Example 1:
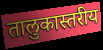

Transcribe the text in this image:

तालुकास्तरीय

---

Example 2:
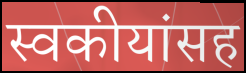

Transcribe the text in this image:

स्वकीयांसह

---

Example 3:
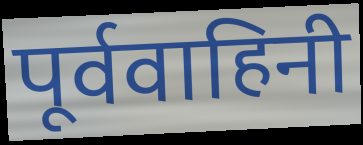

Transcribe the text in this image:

पूर्ववाहिनी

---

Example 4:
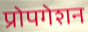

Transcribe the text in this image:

प्रोपगेशन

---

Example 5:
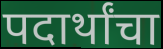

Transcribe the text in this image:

पदार्थांचा